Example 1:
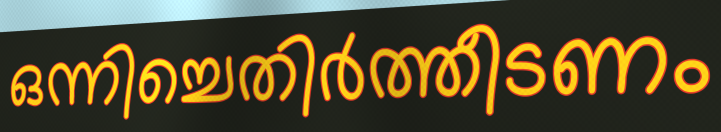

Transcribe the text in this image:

ഒന്നിച്ചെതിർത്തീടണം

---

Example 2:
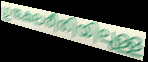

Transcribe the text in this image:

ഗുരുകുലരീതിയിലുള്ള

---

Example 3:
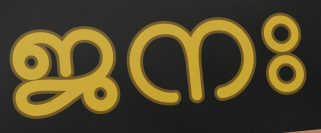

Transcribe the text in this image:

ജനഃ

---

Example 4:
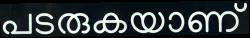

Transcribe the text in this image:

പടരുകയാണ്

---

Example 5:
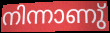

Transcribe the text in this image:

നിന്നാണു്